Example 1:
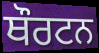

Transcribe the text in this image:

ਥੌਰਟਨ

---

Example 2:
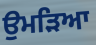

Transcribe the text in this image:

ਉਮੜਿਆ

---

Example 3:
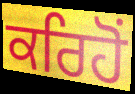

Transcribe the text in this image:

ਕਰਿਹੋਂ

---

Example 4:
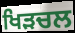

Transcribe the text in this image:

ਖਿੜਚਲ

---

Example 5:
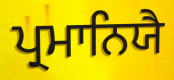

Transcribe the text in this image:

ਪ੍ਰਮਾਨਿਯੈ